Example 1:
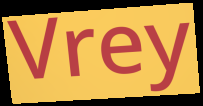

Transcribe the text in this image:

Vrey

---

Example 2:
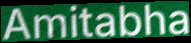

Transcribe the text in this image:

Amitabha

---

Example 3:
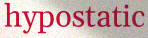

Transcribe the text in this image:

hypostatic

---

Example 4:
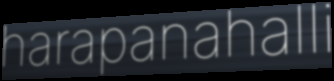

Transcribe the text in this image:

harapanahalli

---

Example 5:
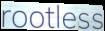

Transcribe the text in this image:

rootless